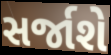
સર્જાશે